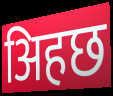
अिहछ